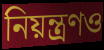
নিয়ন্ত্রণও